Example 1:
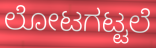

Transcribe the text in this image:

ಲೋಟಗಟ್ಟಲೆ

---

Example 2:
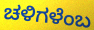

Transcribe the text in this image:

ಚಳಿಗಳೆಂಬ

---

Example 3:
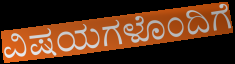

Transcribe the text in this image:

ವಿಷಯಗಳೊಂದಿಗೆ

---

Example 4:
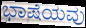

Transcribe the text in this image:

ಭಾಷೆಯವು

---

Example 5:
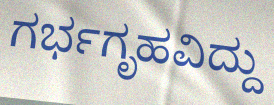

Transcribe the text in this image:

ಗರ್ಭಗೃಹವಿದ್ದು